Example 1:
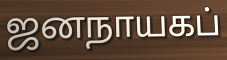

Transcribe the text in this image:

ஜனநாயகப்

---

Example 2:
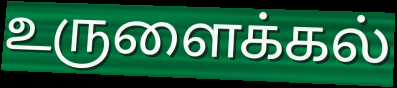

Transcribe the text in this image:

உருளைக்கல்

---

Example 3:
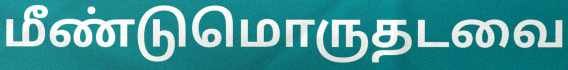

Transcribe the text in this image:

மீண்டுமொருதடவை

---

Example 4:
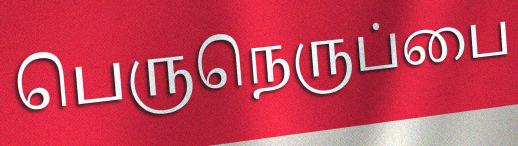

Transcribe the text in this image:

பெருநெருப்பை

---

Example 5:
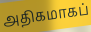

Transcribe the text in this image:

அதிகமாகப்